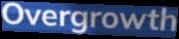
Overgrowth